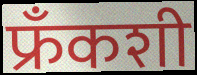
फ्रँकशी